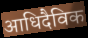
आधिदैविक